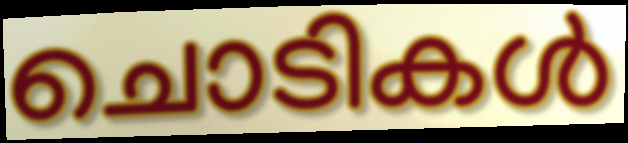
ചൊടികൾ